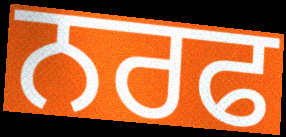
ਨਰਫ